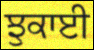
ਝੁਕਾਈ